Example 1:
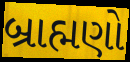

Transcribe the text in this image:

બ્રાહ્મણો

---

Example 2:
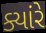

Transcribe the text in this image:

ક્યાંરે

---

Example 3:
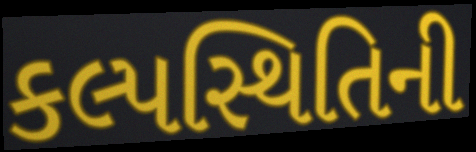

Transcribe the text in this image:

કલ્પસ્થિતિની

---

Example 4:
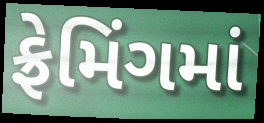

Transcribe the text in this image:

ફ્રેમિંગમાં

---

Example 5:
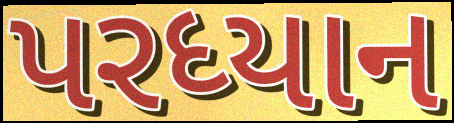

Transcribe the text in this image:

પરધ્યાન